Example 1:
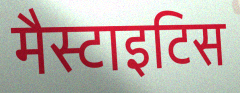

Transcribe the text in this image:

मैस्टाइटिस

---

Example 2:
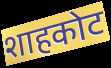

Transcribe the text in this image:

शाहकोट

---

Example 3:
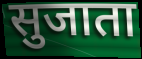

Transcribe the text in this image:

सुजाता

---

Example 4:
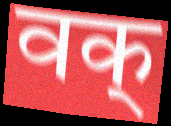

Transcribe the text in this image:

वक्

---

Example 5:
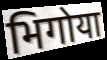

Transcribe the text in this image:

भिगोया